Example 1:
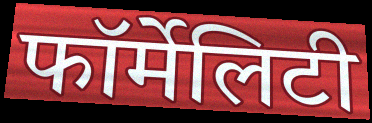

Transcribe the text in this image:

फॉर्मेलिटी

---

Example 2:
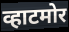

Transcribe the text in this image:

व्हाटमोर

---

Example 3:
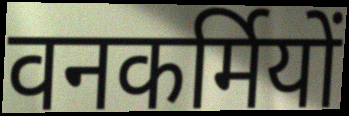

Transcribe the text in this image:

वनकर्मियों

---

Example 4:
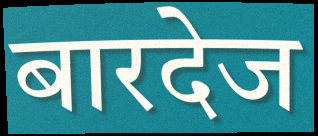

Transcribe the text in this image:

बारदेज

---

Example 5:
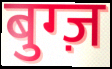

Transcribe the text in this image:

बुग्ज़